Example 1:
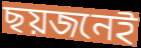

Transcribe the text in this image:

ছয়জনেই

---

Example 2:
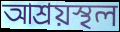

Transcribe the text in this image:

আশ্ৰয়স্থল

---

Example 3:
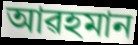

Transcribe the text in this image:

আৱহমান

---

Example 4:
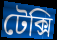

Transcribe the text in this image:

টেক্সি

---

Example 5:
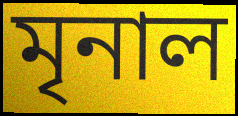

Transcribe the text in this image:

মৃনাল